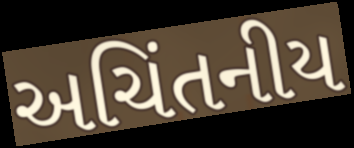
અચિંતનીય